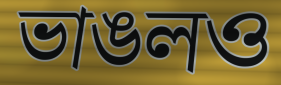
ভাঙলও